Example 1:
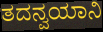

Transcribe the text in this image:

ತದನ್ವಯಾನಿ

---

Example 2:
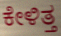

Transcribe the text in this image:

ಕೇಳಿತ್ತ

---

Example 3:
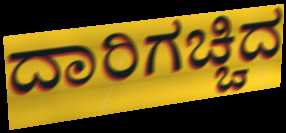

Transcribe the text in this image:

ದಾರಿಗಚ್ಚಿದ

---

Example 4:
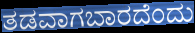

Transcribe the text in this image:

ತಡವಾಗಬಾರದೆಂದು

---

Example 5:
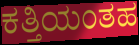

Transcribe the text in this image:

ಕತ್ತಿಯಂತಹ